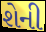
શેની